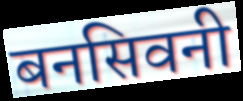
बनसिवनी